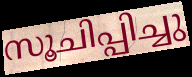
സൂചിപ്പിച്ചു